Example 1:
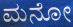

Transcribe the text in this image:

ಮನೋ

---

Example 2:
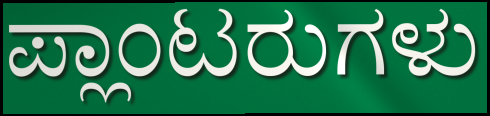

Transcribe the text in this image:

ಪ್ಲಾಂಟರುಗಳು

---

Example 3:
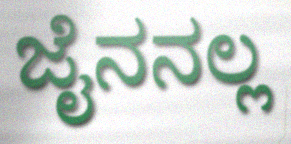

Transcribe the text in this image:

ಜೈನನಲ್ಲ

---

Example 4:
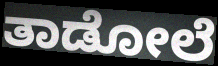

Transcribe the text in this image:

ತಾಡೋಲೆ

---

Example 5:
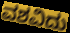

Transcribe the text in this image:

ವಶವಿದು